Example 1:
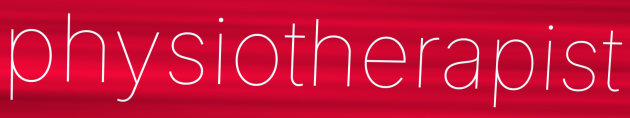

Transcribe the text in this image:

physiotherapist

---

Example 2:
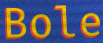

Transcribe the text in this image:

Bole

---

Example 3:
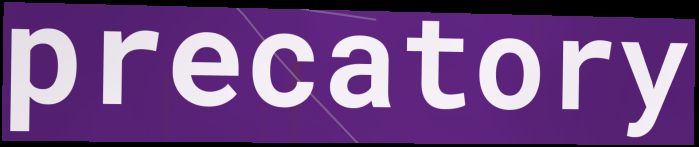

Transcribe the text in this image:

precatory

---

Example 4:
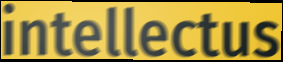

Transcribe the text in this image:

intellectus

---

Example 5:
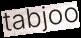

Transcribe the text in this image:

tabjoo